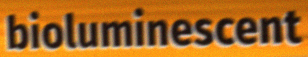
bioluminescent